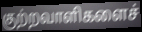
குற்றவாளிகளைச்